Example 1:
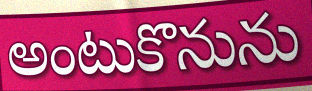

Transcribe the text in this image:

అంటుకొనును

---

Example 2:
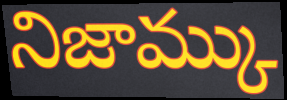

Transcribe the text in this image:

నిజామ్కు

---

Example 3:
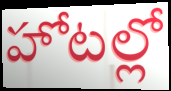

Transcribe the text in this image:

హోటల్లో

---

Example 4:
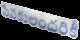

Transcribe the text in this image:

సేవకులందరికీ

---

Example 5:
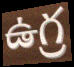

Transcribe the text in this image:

ఉగ్ర